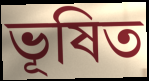
ভূষিত